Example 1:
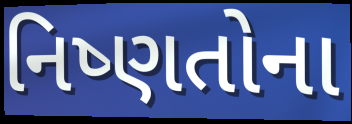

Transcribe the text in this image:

નિષ્ણતોના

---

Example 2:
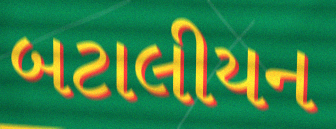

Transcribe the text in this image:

બટાલીયન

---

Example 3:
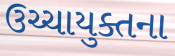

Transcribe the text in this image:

ઉચ્ચાયુક્તના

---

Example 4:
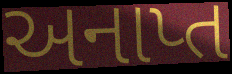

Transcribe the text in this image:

અનાપ્ત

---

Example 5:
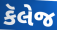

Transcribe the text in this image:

કૅલેજ